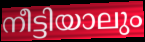
നീട്ടിയാലും